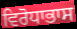
ਵਿਰੋਧਾਭਾਸ